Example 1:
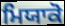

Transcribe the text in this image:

ਮਿਯਾਕੋ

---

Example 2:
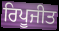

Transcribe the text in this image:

ਰਿਪੂਜੀਤ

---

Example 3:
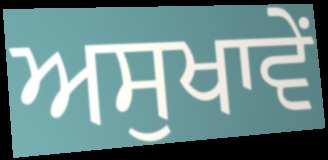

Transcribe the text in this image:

ਅਸੁਖਾਵੇਂ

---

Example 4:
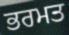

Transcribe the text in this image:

ਭਰਮਤ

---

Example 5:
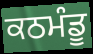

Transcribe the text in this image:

ਕਠਮੰਡੂ